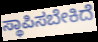
ಸ್ಥಾಪಿಸಬೇಕಿದೆ